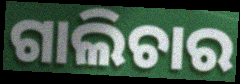
ଗାଲିଚାର